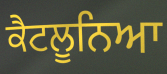
ਕੈਟਲੂਨਿਆ